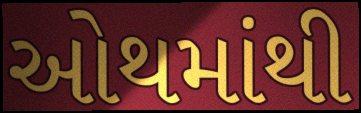
ઓથમાંથી